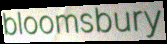
bloomsbury